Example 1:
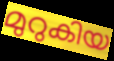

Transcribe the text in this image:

മുറുകിയ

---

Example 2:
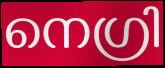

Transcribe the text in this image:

നെഗ്രി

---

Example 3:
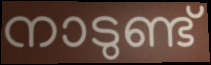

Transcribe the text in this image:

നാടുണ്ട്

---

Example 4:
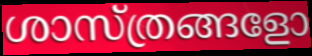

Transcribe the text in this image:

ശാസ്ത്രങ്ങളോ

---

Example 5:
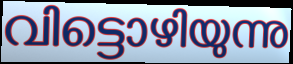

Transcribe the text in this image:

വിട്ടൊഴിയുന്നു